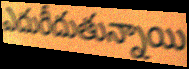
ఎదురీదుతున్నాయి